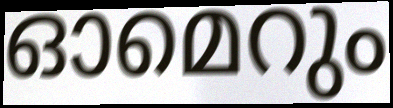
ഓമെറും